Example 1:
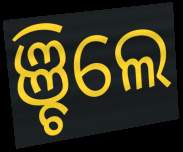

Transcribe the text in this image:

ଞ୍ଚିଲେ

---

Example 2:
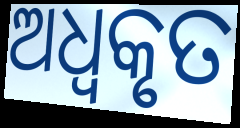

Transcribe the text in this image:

ଅଧ୍ବକୃତ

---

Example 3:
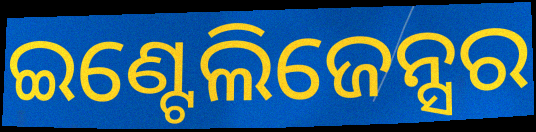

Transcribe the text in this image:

ଇଣ୍ଟେଲିଜେନ୍ସର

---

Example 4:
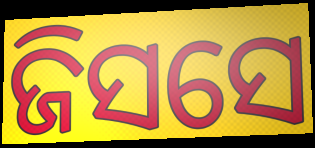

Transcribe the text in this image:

ଜିସସେ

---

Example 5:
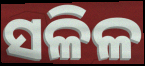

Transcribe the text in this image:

ସଳିଳ